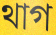
থাগ